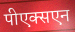
पीएक्सएन